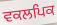
ਵਕਲਪਿਕ